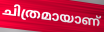
ചിത്രമായാണ്